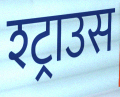
श्ट्राउस